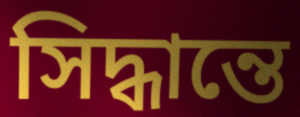
সিদ্ধান্তে